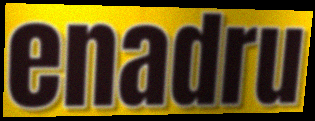
enadru